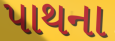
પાથના